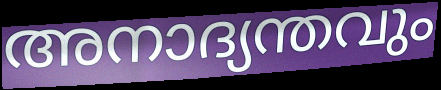
അനാദ്യന്തവും